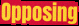
Opposing